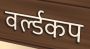
वर्ल्‍डकप